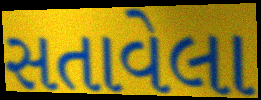
સતાવેલા